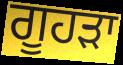
ਗੂਹੜਾ